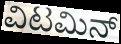
ವಿಟಮಿನ್